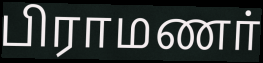
பிராமணர்